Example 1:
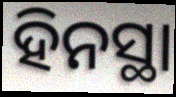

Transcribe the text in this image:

ହିନସ୍ଥା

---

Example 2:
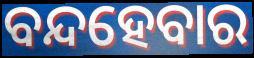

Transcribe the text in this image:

ବନ୍ଦହେବାର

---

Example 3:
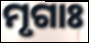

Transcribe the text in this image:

ମୃଗାଃ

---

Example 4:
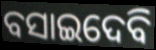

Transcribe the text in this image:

ବସାଇଦେବି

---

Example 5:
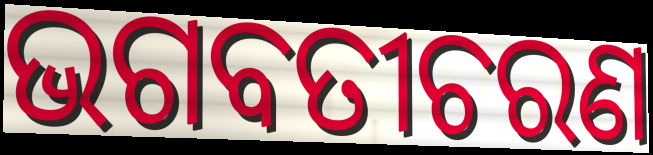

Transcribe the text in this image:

ଭଗବତୀଚରଣ